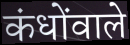
कंधोंवाले